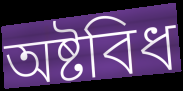
অষ্টবিধ